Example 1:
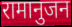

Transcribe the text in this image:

रामानुजन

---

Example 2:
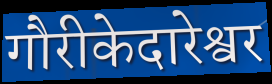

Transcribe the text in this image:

गौरीकेदारेश्वर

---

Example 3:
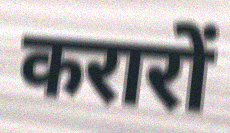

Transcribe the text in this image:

करारों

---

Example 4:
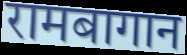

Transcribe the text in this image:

रामबागान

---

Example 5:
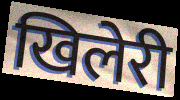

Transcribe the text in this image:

खिलेरी